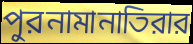
পুরনামানাতিরার